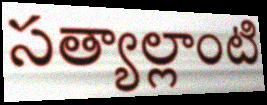
సత్యాల్లాంటి